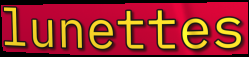
lunettes